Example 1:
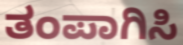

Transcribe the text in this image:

ತಂಪಾಗಿಸಿ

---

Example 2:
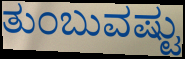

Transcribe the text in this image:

ತುಂಬುವಷ್ಟು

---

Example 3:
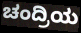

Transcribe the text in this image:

ಚಂದ್ರಿಯ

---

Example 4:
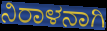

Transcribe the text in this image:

ನಿರಾಳನಾಗಿ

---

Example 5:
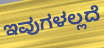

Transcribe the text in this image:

ಇವುಗಳಲ್ಲದೆ